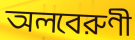
অলবেরুণী